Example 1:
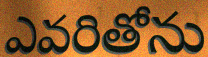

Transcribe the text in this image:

ఎవరితోను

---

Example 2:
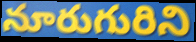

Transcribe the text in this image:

నూరుగురిని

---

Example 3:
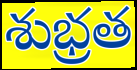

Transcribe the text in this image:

శుభ్రత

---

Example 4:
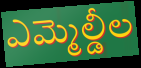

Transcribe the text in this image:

ఎమ్మెల్డీల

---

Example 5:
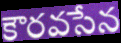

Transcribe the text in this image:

కౌరవసేన